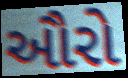
ઔરો